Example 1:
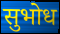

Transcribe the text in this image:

सुभोध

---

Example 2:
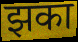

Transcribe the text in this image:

झका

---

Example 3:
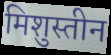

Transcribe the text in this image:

मिशुस्तीन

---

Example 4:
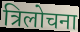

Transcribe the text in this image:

त्रिलोचना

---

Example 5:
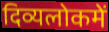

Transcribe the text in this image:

दिव्यलोकमें